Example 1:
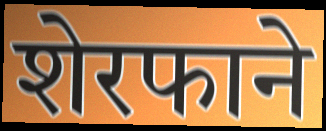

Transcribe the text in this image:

शेरफाने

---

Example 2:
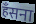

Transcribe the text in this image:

हँसना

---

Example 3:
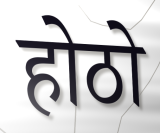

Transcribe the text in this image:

होठो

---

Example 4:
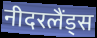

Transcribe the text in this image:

नीदरलैंड्स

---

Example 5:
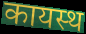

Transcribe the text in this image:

कायस्थ